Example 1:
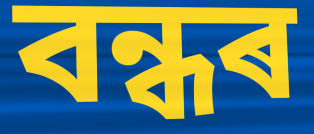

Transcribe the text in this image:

বন্ধৰ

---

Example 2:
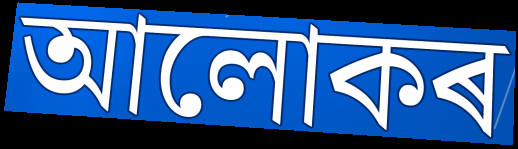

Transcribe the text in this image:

আলোকৰ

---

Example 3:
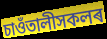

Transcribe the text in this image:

চাওঁতালীসকলৰ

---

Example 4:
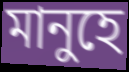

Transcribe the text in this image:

মানুহে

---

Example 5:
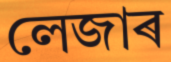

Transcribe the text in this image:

লেজাৰ